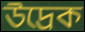
উদ্রেক